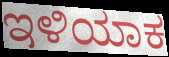
ಇಳಿಯಾಕ